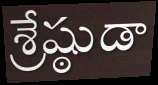
శ్రేష్ఠుడా